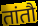
तांतौ